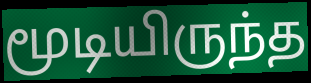
மூடியிருந்த